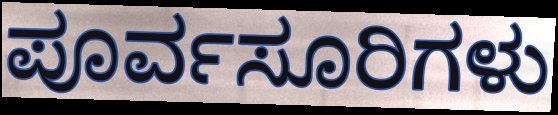
ಪೂರ್ವಸೂರಿಗಳು